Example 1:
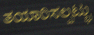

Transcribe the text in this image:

ತಯಾರಿಸಲ್ಪಟ್ಟು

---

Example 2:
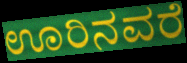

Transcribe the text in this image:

ಊರಿನವರೆ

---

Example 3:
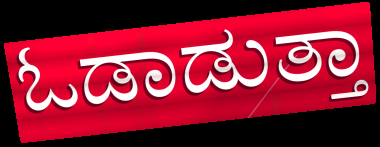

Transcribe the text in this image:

ಓಡಾಡುತ್ತಾ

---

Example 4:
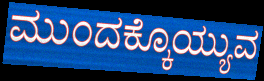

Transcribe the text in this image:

ಮುಂದಕ್ಕೊಯ್ಯುವ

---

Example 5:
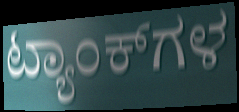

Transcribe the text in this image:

ಟ್ಯಾಂಕ್‌ಗಳ